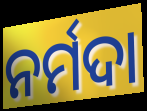
ନର୍ମଦା